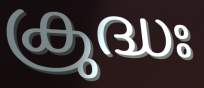
ക്രുദ്ധഃ